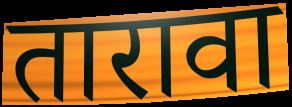
तारावा